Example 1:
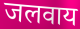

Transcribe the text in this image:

जलवाय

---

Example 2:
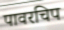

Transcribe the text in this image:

पावरचिप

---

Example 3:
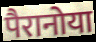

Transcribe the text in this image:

पैरानोया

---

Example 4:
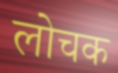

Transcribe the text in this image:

लोचक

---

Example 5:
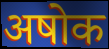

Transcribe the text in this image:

अषोक